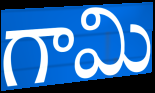
గామి